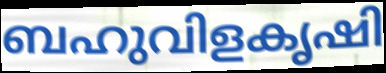
ബഹുവിളകൃഷി